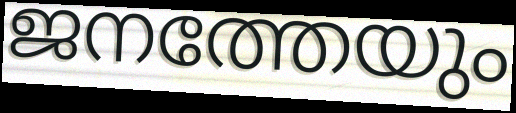
ജനത്തേയും